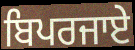
ਬਿਪਰਜਾਏ